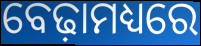
ବେଢ଼ାମଧ୍ୟରେ